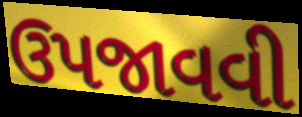
ઉપજાવવી